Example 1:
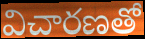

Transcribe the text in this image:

విచారణతో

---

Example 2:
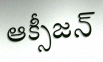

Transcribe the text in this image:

ఆక్సీజన్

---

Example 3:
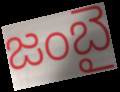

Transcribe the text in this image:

జంబై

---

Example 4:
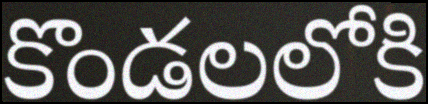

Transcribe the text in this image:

కొండలలోకి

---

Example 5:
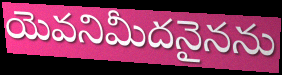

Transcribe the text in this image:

యెవనిమీదనైనను